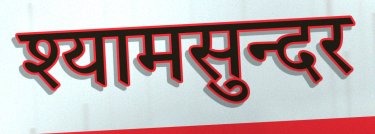
श्यामसुन्दर